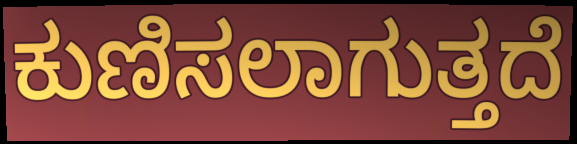
ಕುಣಿಸಲಾಗುತ್ತದೆ